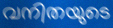
വനിതയുടെ